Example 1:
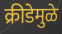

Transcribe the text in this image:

क्रीडेमुळे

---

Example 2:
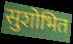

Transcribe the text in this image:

सुशोभित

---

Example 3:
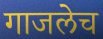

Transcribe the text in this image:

गाजलेच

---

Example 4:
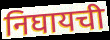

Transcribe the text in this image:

निघायची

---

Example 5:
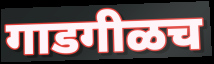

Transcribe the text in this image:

गाडगीळच